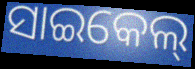
ସାଇକେଲ୍